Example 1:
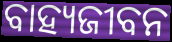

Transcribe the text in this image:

ବାହ୍ୟଜୀବନ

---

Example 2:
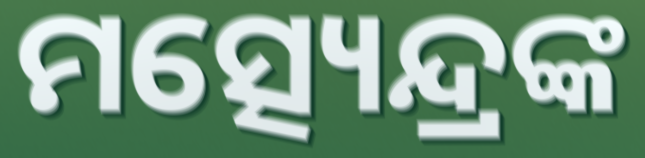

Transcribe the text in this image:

ମତ୍ସ୍ୟେନ୍ଦ୍ରଙ୍କ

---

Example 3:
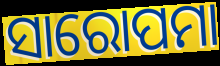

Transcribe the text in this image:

ସାରୋପମା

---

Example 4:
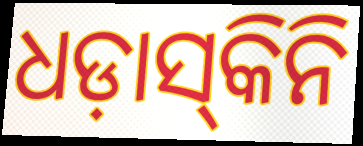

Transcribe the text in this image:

ଧଡ଼ାସ୍‌କିନି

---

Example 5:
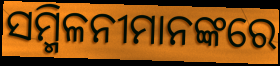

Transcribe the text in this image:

ସମ୍ମିଳନୀମାନଙ୍କରେ